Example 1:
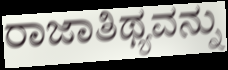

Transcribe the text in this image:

ರಾಜಾತಿಥ್ಯವನ್ನು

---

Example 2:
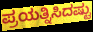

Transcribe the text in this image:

ಪ್ರಯತ್ನಿಸಿದಷ್ಟು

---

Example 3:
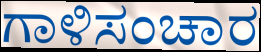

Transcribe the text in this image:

ಗಾಳಿಸಂಚಾರ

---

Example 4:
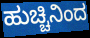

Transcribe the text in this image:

ಹುಚ್ಚಿನಿಂದ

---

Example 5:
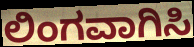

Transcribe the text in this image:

ಲಿಂಗವಾಗಿಸಿ